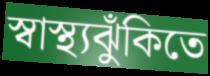
স্বাস্থ্যঝুঁকিতে